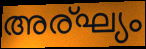
അര്ഘ്യം